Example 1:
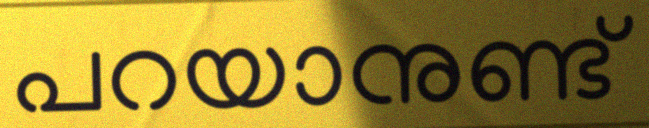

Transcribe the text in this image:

പറയാനുണ്ട്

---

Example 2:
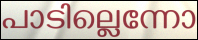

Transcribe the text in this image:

പാടില്ലെന്നോ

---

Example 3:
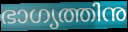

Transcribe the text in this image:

ഭാഗ്യത്തിനു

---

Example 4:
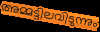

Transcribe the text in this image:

അമ്മട്ടിലവിടുന്നും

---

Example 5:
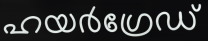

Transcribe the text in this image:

ഹയർഗ്രേഡ്